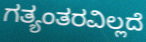
ಗತ್ಯಂತರವಿಲ್ಲದೆ